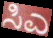
ಸಿಎ